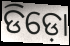
ଡିଡ଼ୋ